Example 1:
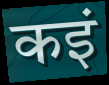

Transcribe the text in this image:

कइं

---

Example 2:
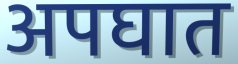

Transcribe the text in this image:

अपघात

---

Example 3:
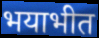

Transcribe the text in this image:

भयाभीत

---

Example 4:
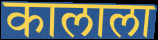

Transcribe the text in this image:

कालाला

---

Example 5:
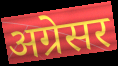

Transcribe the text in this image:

अग्रेसर